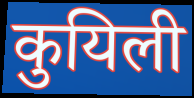
कुयिली